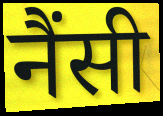
नैंसी